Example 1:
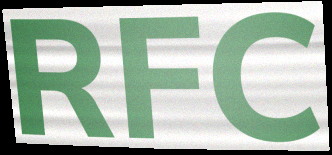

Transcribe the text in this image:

RFC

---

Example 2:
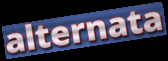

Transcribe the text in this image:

alternata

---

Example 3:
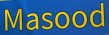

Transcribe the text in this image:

Masood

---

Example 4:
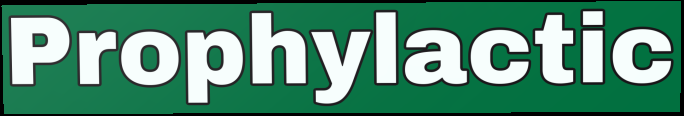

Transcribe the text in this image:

Prophylactic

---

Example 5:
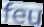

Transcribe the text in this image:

feu